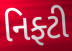
નિફ્ટી